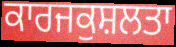
ਕਾਰਜਕੁਸ਼ਲਤਾ